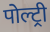
पोल्ट्री